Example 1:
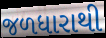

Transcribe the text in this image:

જળધારાથી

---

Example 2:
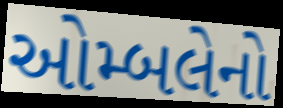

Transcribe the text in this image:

ઓમ્બલેનો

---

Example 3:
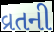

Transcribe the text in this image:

વ્રતની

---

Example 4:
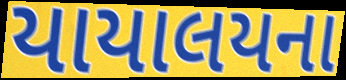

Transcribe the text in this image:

યાયાલયના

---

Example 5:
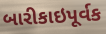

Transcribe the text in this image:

બારીકાઇપૂર્વક